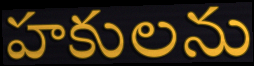
హకులను